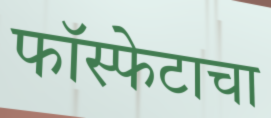
फॉस्फेटाचा